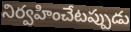
నిర్వహించేటప్పుడు